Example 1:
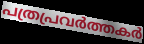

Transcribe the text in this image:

പത്രപ്രവർത്തകർ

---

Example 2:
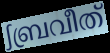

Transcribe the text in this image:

ഽബ്രവീത്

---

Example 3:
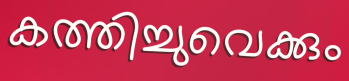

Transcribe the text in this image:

കത്തിച്ചുവെക്കും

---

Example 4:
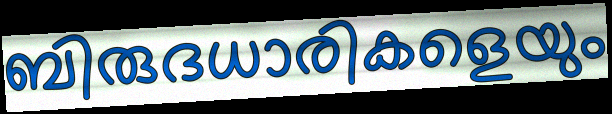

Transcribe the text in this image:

ബിരുദധാരികളെയും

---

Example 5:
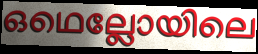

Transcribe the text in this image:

ഒഥെല്ലോയിലെ